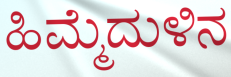
ಹಿಮ್ಮೆದುಳಿನ